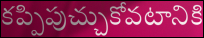
కప్పిపుచ్చుకోవటానికి